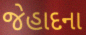
જેહાદના